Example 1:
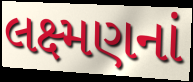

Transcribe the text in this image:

લક્ષ્મણનાં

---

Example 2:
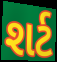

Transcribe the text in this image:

શર્ટ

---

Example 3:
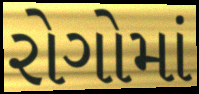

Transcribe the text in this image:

રોગોમાં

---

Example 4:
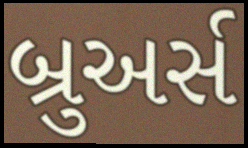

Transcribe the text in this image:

બ્રુઅર્સ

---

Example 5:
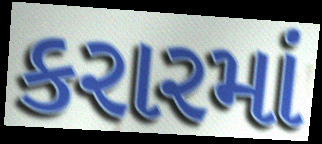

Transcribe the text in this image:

કરારમાં